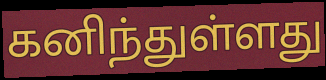
கனிந்துள்ளது